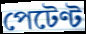
পেটেণ্ট